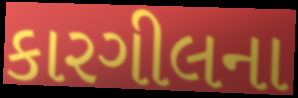
કારગીલના